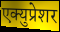
एक्युप्रेशर